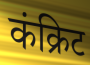
कंक्रिट